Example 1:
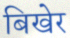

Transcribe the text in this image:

बिखेर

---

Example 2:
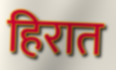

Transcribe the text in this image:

हिरात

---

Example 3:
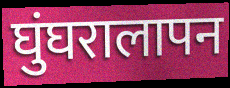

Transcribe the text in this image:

घुंघरालापन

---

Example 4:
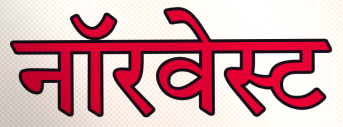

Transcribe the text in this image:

नॉरवेस्ट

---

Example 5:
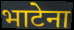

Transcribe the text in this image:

भाटेना